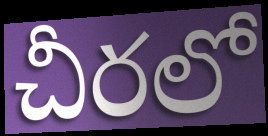
చీరలో